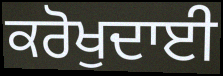
ਕਰੋਖੁਦਾਈ